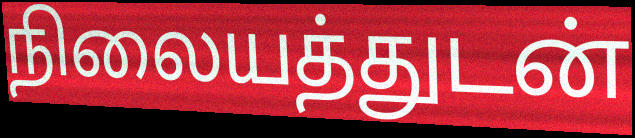
நிலையத்துடன்